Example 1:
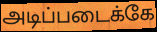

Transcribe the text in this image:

அடிப்படைக்கே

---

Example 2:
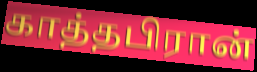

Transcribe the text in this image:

காத்தபிரான்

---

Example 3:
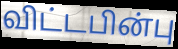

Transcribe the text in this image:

விட்டபின்பு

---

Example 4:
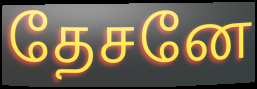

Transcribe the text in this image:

தேசனே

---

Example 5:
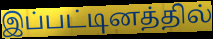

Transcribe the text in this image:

இப்பட்டினத்தில்